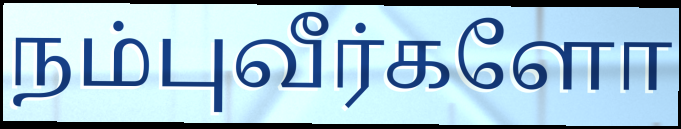
நம்புவீர்களோ